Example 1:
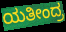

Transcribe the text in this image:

ಯತೀಂದ್ರ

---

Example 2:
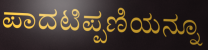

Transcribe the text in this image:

ಪಾದಟಿಪ್ಪಣಿಯನ್ನೂ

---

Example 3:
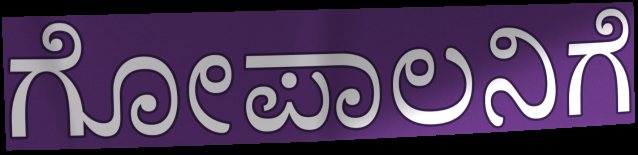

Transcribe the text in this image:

ಗೋಪಾಲನಿಗೆ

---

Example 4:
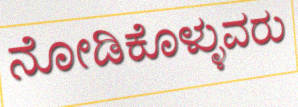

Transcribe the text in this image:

ನೋಡಿಕೊಳ್ಳುವರು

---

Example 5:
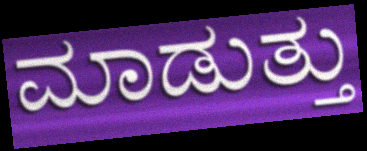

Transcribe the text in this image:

ಮಾಡುತ್ತು